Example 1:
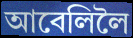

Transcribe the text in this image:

আবেলিলৈ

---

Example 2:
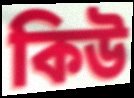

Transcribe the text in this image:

কিউ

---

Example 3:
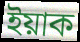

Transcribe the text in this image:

ইয়াক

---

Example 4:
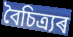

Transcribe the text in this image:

বৈচিত্ৰ্যৰ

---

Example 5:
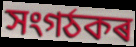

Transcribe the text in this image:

সংগঠকৰ